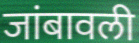
जांबावली